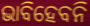
ଭାବିହେବନି